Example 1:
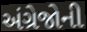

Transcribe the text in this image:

અંગ્રેજોની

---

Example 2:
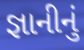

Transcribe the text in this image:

જ્ઞાનીનું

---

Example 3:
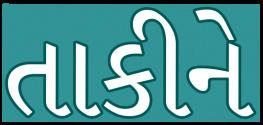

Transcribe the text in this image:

તાકીને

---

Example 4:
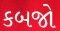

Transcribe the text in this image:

કબજો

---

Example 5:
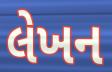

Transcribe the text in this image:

લેખન